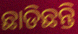
ଛାଡିଛନ୍ତି